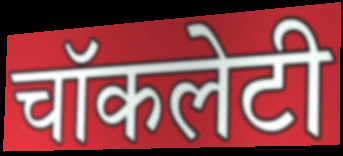
चॉकलेटी